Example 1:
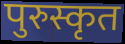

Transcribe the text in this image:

पुरुस्कृत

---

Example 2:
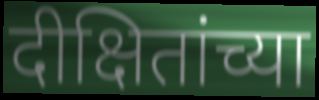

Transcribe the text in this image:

दीक्षितांच्या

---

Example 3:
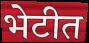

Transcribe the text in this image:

भेटीत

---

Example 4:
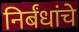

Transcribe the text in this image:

निर्बंधांचे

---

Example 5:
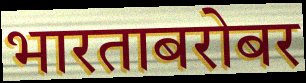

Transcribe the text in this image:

भारताबरोबर